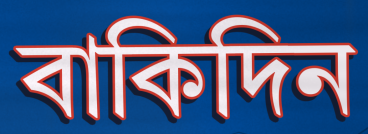
বাকিদিন